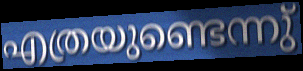
എത്രയുണ്ടെന്നു്